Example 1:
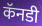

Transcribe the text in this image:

कॅनडी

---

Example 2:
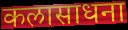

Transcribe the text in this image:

कलासाधना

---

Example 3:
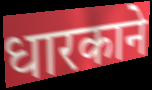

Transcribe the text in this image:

धारकाने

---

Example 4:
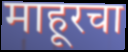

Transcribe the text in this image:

माहूरचा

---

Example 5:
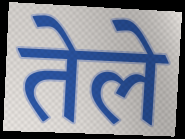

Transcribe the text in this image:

तेले